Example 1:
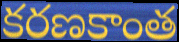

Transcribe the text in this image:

కరణకాంత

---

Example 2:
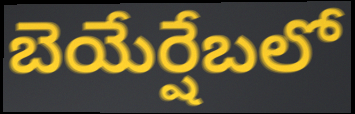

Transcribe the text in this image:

బెయేర్షేబలో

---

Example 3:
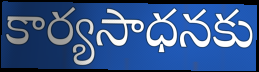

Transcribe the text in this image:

కార్యసాధనకు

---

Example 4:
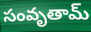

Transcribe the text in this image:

సంవృతామ్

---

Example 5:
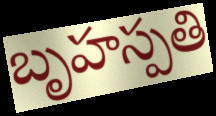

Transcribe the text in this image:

బృహస్పతి